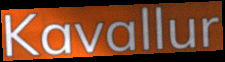
Kavallur